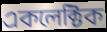
একলেক্টিক